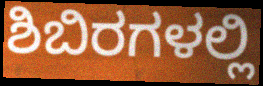
ಶಿಬಿರಗಳಲ್ಲಿ